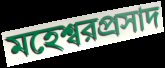
মহেশ্বরপ্রসাদ